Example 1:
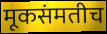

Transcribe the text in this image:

मूकसंमतीच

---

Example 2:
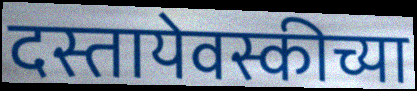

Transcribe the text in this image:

दस्तायेवस्कीच्या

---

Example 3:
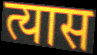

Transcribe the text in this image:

त्‍यास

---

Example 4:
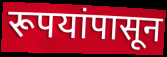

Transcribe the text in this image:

रूपयांपासून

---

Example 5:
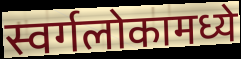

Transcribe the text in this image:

स्वर्गलोकामध्ये